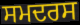
ਸਮਦਰਸ